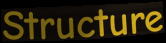
Structure